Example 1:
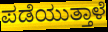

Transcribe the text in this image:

ಪಡೆಯುತ್ತಾಳೆ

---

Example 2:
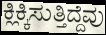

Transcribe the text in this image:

ಕ್ಲಿಕ್ಕಿಸುತ್ತಿದ್ದೆವು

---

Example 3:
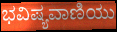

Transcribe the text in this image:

ಭವಿಷ್ಯವಾಣಿಯು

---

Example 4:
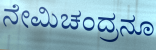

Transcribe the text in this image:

ನೇಮಿಚಂದ್ರನೂ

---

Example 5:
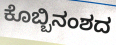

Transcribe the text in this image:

ಕೊಬ್ಬಿನಂಶದ